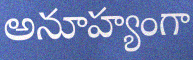
అనూహ్యంగా